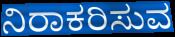
ನಿರಾಕರಿಸುವ